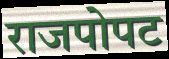
राजपोपट